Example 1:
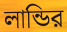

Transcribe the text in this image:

লান্ডির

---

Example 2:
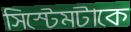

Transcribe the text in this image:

সিস্টেমটাকে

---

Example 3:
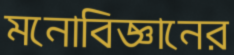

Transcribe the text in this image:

মনোবিজ্ঞানের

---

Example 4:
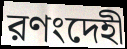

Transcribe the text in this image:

রণংদেহী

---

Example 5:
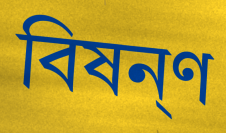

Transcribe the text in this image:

বিষন্ণ